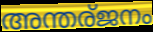
അന്തര്ജനം